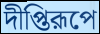
দীপ্তিরূপে